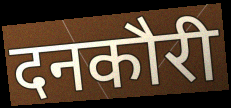
दनकौरी